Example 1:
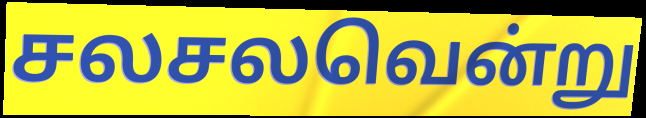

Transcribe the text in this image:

சலசலவென்று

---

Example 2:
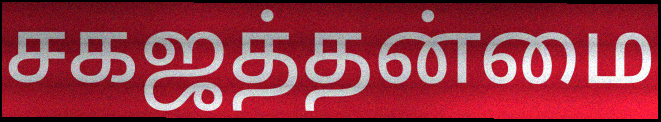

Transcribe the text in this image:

சகஜத்தன்மை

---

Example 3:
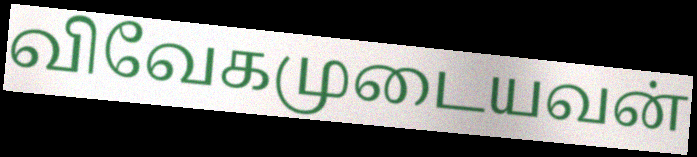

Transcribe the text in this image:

விவேகமுடையவன்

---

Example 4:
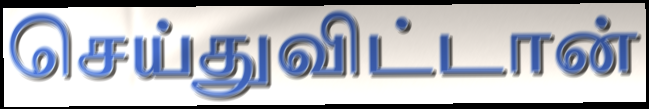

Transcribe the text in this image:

செய்துவிட்டான்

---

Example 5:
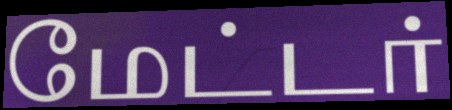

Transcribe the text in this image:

மேட்டர்